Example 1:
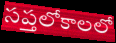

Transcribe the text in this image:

సప్తలోకాలలో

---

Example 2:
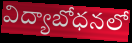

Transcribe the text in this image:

విద్యాబోధనలో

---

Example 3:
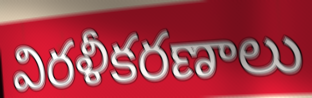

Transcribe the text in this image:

విరళీకరణాలు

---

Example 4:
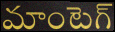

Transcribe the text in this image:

మాంటెగ్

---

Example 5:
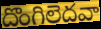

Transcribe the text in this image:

దొంగిలెదవా